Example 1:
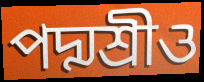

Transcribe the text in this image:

পদ্মশ্রীও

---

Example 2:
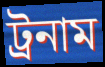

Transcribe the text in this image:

ট্রনাম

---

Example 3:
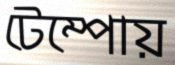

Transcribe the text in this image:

টেম্পোয়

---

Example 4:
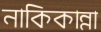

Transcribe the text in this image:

নাকিকান্না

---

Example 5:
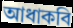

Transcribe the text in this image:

আধাকবি